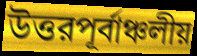
উত্তরপূর্বাঞ্চলীয়